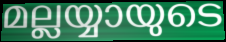
മല്ലയ്യായുടെ